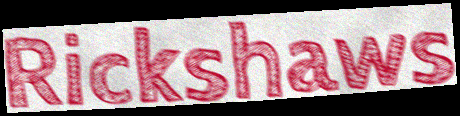
Rickshaws